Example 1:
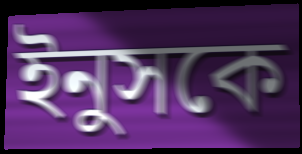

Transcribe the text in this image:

ইনুসকে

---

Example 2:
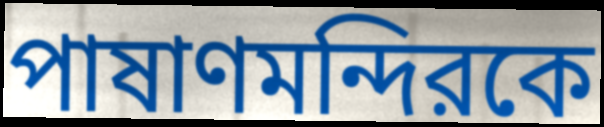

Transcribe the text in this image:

পাষাণমন্দিরকে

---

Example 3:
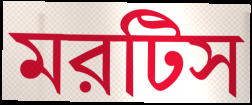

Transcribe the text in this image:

মরটিস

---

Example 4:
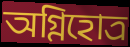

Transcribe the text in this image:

অগ্নিহোত্র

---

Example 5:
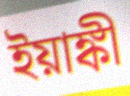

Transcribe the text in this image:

ইয়াঙ্কী